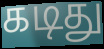
கடிது